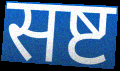
सष्ट